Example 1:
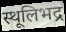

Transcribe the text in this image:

स्थूलिभद्र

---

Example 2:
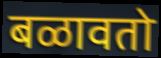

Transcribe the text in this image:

बळावतो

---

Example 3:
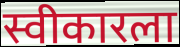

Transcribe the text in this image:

स्वीकारला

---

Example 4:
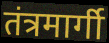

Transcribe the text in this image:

तंत्रमार्गी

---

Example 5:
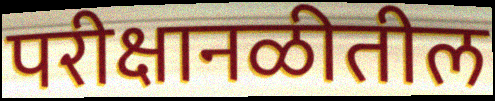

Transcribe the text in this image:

परीक्षानळीतील